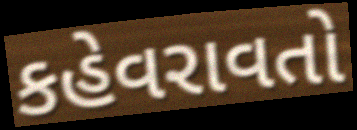
કહેવરાવતો